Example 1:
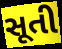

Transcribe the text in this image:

સૂતી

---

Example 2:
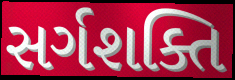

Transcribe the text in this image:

સર્ગશક્તિ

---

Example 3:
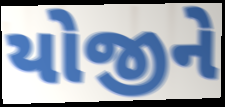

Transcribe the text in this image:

યોજીને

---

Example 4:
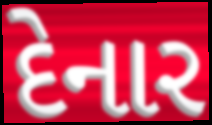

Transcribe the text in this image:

દેનાર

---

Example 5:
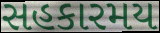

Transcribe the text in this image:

સહકારમય